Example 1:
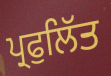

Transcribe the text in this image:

ਪ੍ਰਫੁਲਿੱਤ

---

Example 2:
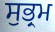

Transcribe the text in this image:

ਸੁਭ੍ਰਮ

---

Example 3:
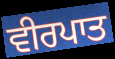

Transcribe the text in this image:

ਵੀਰਪਾਤ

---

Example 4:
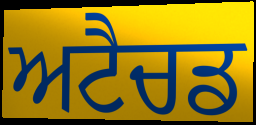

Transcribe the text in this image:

ਅਟੈਚਡ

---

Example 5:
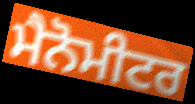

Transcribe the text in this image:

ਮੈਨੋਮੀਟਰ